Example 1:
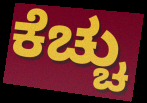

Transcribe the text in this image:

ಕೆಚ್ಚು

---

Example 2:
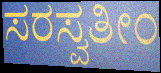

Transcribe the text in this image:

ಸರಸ್ವತೀಂ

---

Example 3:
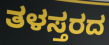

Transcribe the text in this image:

ತಳಸ್ತರದ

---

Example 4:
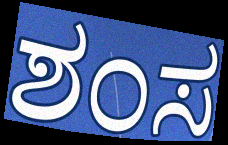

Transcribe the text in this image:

ಶಂಸ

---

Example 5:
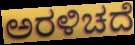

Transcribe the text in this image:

ಅರಳಿಚದೆ